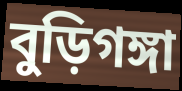
বুড়িগঙ্গা